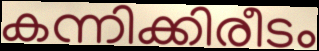
കന്നിക്കിരീടം